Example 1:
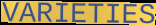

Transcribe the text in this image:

VARIETIES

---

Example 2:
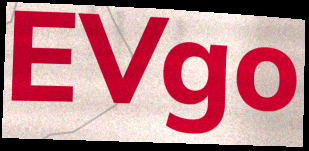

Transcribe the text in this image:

EVgo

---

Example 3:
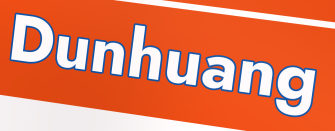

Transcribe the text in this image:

Dunhuang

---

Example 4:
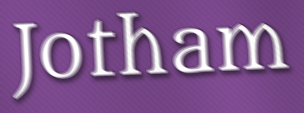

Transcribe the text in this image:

Jotham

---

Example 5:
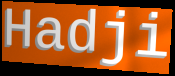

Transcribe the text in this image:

Hadji